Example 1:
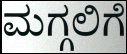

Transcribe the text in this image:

ಮಗ್ಗಲಿಗೆ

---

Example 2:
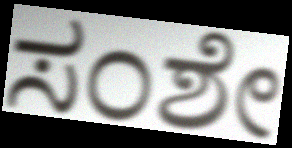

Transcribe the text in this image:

ಸಂಶೇ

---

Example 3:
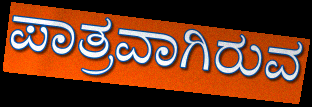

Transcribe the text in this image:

ಪಾತ್ರವಾಗಿರುವ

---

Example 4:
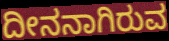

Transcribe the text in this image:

ದೀನನಾಗಿರುವ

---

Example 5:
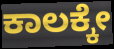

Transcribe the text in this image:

ಕಾಲಕ್ಕೇ